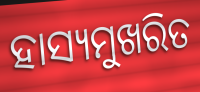
ହାସ୍ୟମୁଖରିତ